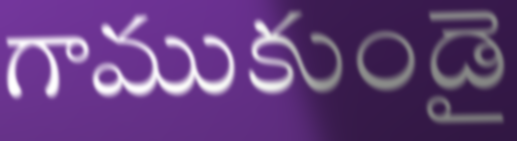
గాముకుండై